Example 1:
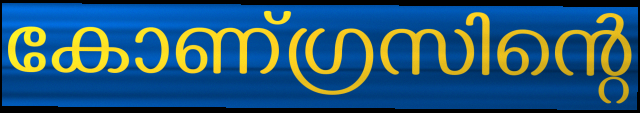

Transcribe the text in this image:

കോണ്ഗ്രസിന്റെ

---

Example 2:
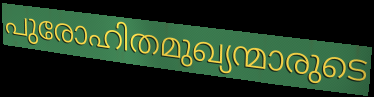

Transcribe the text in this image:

പുരോഹിതമുഖ്യന്മാരുടെ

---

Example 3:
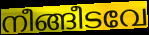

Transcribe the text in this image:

നീങ്ങീടവേ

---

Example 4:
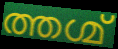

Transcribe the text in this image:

ത്തഗ്മ്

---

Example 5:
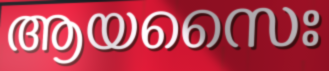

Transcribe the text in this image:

ആയസൈഃ